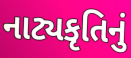
નાટ્યકૃતિનું